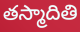
తస్మాదితి